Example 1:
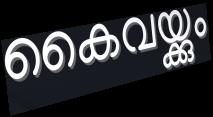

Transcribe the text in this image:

കൈവയ്ക്കും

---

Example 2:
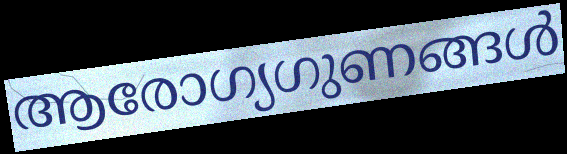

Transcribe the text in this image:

ആരോഗ്യഗുണങ്ങൾ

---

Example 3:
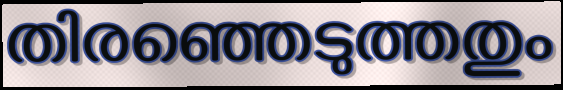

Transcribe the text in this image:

തിരഞ്ഞെടുത്തതും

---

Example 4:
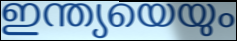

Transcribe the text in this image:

ഇന്ത്യയെയും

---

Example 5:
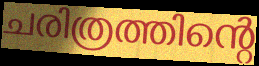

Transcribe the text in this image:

ചരിത്രത്തിന്റെ